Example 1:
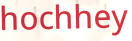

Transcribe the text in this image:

hochhey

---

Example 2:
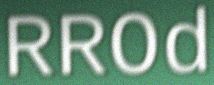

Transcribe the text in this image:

RROd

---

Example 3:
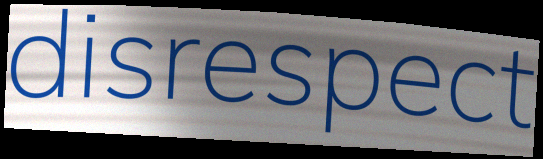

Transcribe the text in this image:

disrespect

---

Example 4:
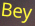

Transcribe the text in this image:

Bey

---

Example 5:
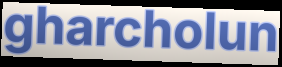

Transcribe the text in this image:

gharcholun